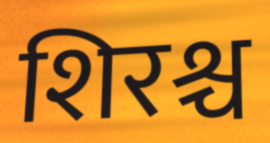
शिरश्च